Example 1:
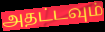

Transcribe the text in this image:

அதட்டவும்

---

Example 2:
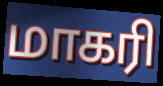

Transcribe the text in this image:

மாகரி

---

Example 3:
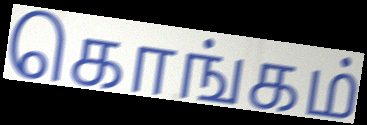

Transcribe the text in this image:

கொங்கம்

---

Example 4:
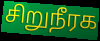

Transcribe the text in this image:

சிறுநீரக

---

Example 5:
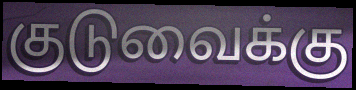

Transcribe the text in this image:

குடுவைக்கு